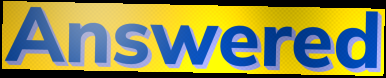
Answered